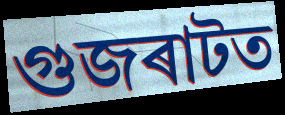
গুজৰাটত